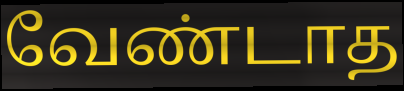
வேண்டாத